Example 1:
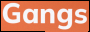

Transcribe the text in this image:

Gangs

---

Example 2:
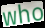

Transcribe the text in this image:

who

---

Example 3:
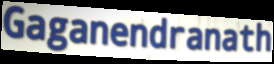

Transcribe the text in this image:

Gaganendranath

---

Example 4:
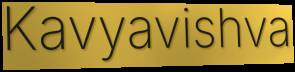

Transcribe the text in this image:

Kavyavishva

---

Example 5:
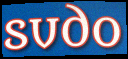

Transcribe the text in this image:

sudo